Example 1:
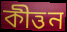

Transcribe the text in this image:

কীত্তন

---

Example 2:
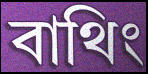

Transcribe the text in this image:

বাথিং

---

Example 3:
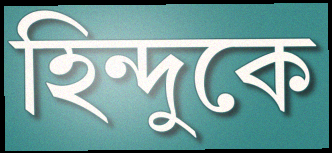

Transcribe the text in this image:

হিন্দুকে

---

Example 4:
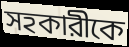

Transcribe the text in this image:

সহকারীকে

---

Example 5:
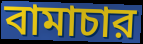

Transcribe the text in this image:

বামাচার